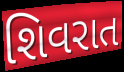
શિવરાત